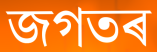
জগতৰ